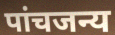
पांचजन्य